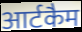
आर्टकैम